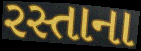
રસ્તાના